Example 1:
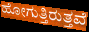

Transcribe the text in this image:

ಹೋಗುತ್ತಿರುತ್ತವೆ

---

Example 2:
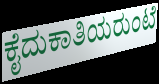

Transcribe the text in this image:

ಕೈದುಕಾತಿಯರುಂಟೆ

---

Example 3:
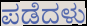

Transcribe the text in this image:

ಪಡೆದಳು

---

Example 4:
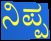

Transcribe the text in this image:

ನಿಪ್ಪ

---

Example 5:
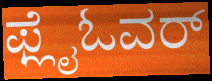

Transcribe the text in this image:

ಫ್ಲೈಓವರ್